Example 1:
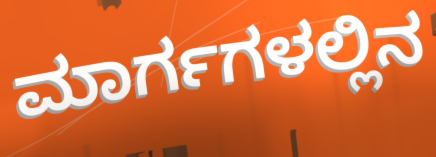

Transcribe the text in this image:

ಮಾರ್ಗಗಳಲ್ಲಿನ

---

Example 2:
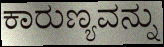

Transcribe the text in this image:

ಕಾರುಣ್ಯವನ್ನು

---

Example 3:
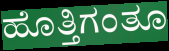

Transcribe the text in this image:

ಹೊತ್ತಿಗಂತೂ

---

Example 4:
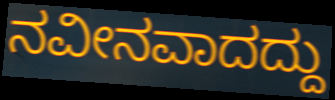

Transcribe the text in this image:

ನವೀನವಾದದ್ದು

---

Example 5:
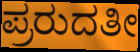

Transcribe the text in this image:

ಪ್ರರುದತೀ